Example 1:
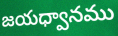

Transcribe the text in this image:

జయధ్వానము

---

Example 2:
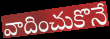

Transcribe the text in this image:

వాదించుకొనే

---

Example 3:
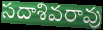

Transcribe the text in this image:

సదాశివరావు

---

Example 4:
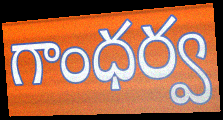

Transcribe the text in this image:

గాంధర్వ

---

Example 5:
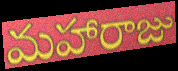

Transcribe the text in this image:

మహారాజు